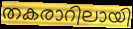
തകരാറിലായി